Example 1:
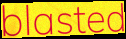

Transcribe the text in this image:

blasted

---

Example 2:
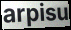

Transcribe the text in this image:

arpisu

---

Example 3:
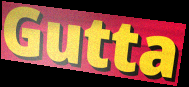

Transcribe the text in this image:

Gutta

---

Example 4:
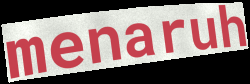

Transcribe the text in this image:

menaruh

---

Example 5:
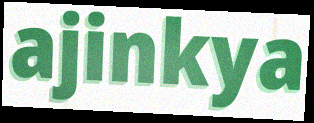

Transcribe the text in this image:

ajinkya